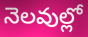
నెలవుల్లో